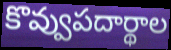
కొవ్వుపదార్థాల